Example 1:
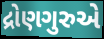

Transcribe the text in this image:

દ્રોણગુરુએ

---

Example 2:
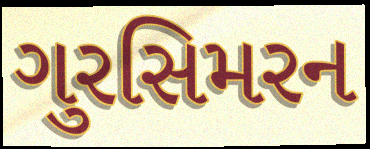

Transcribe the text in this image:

ગુરસિમરન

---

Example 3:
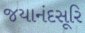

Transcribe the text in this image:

જયાનંદસૂરિ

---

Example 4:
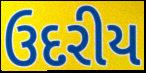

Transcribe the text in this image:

ઉદરીય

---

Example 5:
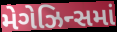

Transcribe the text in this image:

મેગેઝિન્સમાં